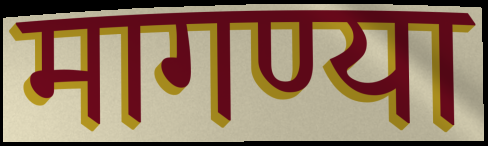
मागण्या